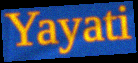
Yayati